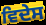
ਵਿਦੇਸ